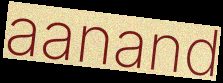
aanand